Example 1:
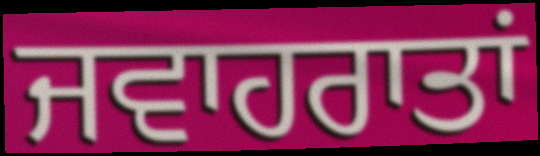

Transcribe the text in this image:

ਜਵਾਹਰਾਤਾਂ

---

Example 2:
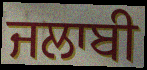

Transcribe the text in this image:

ਜਲਾਬੀ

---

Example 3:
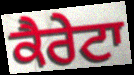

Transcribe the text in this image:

ਕੈਰੇਟਾ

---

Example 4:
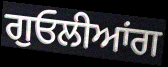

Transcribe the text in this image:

ਗੁਓਲੀਆਂਗ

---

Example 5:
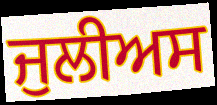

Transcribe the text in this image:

ਜੁਲੀਅਸ